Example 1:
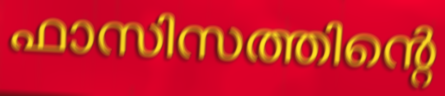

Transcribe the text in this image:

ഫാസിസത്തിന്റെ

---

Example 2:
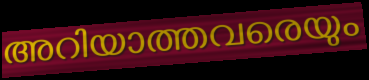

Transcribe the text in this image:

അറിയാത്തവരെയും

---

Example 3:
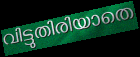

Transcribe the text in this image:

വിട്ടുതിരിയാതെ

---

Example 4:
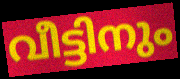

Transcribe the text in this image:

വീട്ടിനും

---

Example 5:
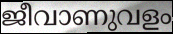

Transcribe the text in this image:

ജീവാണുവളം